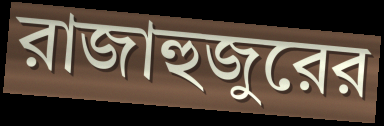
রাজাহুজুরের